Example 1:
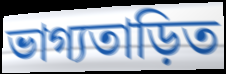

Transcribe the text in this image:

ভাগ্যতাড়িত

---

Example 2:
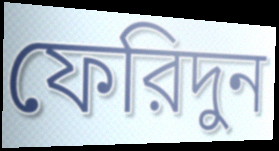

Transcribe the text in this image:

ফেরিদুন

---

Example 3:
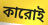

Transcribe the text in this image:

কারোই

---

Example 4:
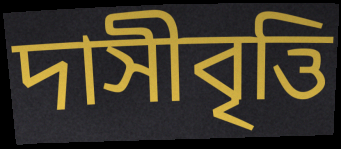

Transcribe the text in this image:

দাসীবৃত্তি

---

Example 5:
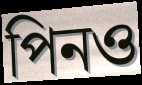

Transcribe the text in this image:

পিনও